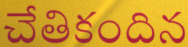
చేతికందిన